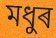
মধুৰ